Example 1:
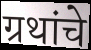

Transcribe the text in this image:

ग्रथांचे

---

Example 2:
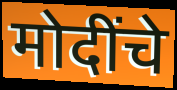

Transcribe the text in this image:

मोदींचे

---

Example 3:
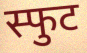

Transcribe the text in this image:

स्फुट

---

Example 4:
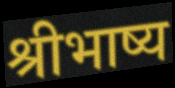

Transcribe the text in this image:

श्रीभाष्य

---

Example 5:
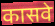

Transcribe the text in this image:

कासवे